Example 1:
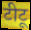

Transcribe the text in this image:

टीटू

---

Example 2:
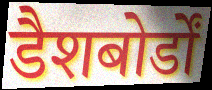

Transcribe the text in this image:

डैशबोर्डों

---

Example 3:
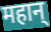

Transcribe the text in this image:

महान्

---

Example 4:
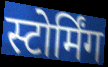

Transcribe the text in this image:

स्टोर्मिंग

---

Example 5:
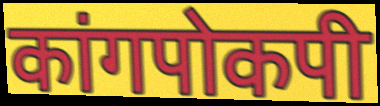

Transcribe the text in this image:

कांगपोकपी